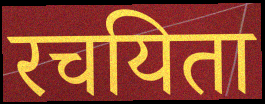
रचयिता